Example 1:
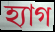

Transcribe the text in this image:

হ্যাগ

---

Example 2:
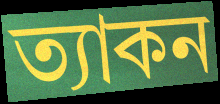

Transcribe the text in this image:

ত্যাকন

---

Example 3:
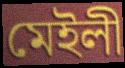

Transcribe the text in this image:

মেইলী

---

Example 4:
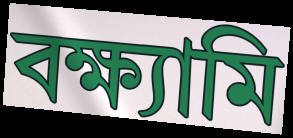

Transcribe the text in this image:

বক্ষ্যামি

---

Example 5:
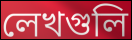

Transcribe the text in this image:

লেখগুলি